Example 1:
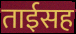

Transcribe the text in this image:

ताईसह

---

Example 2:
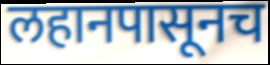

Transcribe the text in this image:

लहानपासूनच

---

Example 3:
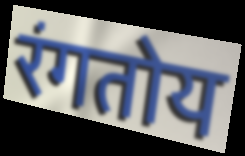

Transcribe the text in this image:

रंगतोय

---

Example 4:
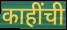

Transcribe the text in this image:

काहींची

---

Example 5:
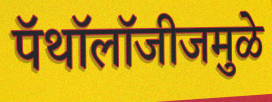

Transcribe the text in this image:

पॅथॉलॉजीजमुळे